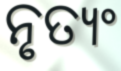
ନୃତ୍ୟଂ